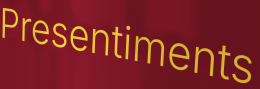
Presentiments